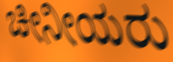
ಚೀನೀಯರು